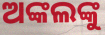
ଅଙ୍କଲଙ୍କୁ